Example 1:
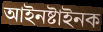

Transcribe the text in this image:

আইনষ্টাইনক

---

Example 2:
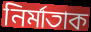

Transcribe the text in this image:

নিৰ্মাতাক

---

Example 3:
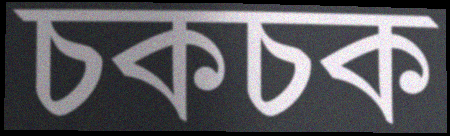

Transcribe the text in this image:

চকচক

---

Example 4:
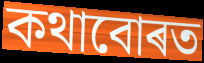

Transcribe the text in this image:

কথাবোৰত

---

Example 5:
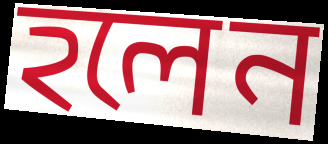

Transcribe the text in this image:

হলেন